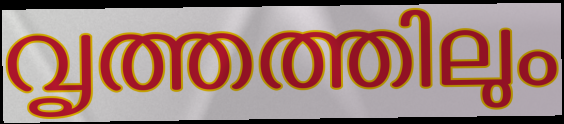
വൃത്തത്തിലും